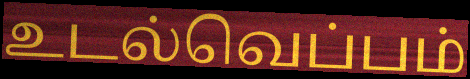
உடல்வெப்பம்